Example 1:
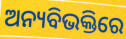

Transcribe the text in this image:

ଅନ୍ୟବିଭକ୍ତିରେ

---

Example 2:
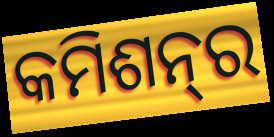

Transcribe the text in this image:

କମିଶନ୍‌ର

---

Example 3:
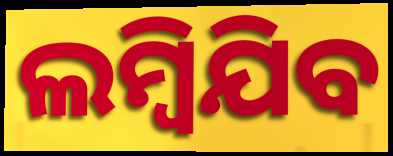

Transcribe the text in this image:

ଲମ୍ୱିଯିବ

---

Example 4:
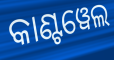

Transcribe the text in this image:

କାଣ୍ଟୱେଲ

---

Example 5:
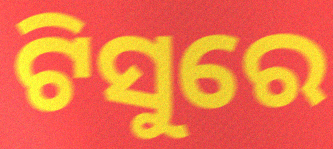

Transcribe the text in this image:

ଟିସୁରେ